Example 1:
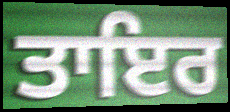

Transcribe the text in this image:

ਤਾਇਰ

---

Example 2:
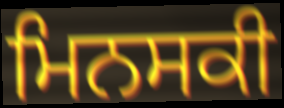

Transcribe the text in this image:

ਮਿਨਸਕੀ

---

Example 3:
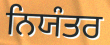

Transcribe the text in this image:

ਨਿਯੰਤਰ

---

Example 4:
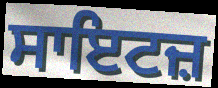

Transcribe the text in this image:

ਸਾਇਟਜ਼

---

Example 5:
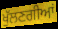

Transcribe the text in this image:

ਖੁੱਲਣਗੀਆਂ